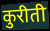
कुरीती